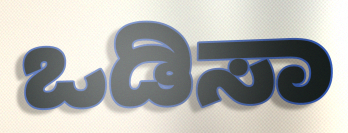
ಒಡಿಸಾ